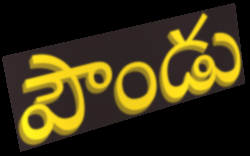
పౌండు